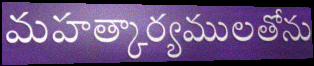
మహత్కార్యములతోను